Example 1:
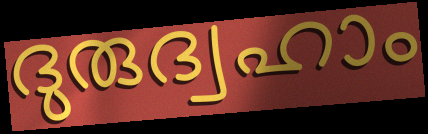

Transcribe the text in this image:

ദുരുദ്വഹാം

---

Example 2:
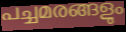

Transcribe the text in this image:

പച്ചമരങ്ങളും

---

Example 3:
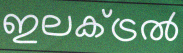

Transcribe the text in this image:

ഇലക്ട്രൽ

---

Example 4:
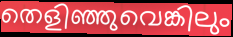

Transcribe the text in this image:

തെളിഞ്ഞുവെങ്കിലും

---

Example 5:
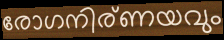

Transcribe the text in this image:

രോഗനിര്ണയവും